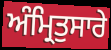
ਅੰਮ੍ਰਿਤੁਸਾਰੇ